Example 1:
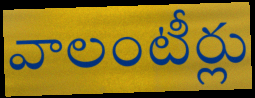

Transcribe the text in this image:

వాలంటీర్లు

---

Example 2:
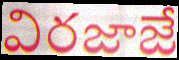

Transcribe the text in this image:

విరజాజే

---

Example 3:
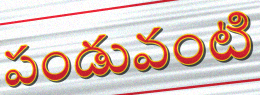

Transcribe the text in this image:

పండువంటి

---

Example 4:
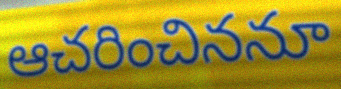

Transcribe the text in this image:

ఆచరించిననూ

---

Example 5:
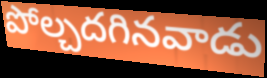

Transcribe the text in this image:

పోల్చదగినవాడు